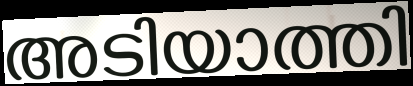
അടിയാത്തി